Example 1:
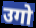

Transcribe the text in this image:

उगो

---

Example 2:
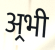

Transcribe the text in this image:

अ्रभी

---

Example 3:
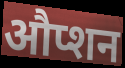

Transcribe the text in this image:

औप्शन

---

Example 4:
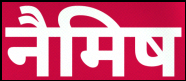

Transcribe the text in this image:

नैमिष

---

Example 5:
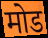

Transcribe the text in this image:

मोड